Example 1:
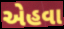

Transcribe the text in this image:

એહવા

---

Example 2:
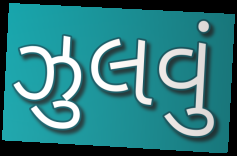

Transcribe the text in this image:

ઝુલવું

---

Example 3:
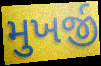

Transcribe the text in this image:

મુખર્જી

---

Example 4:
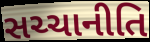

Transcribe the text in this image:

સચ્ચાનીતિ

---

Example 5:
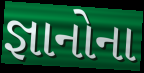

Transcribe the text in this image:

જ્ઞાનોના